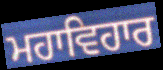
ਮਹਾਵਿਹਾਰ